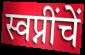
स्वप्नींचें